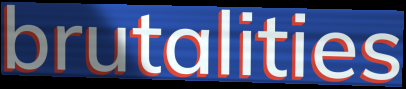
brutalities